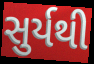
સુર્યથી